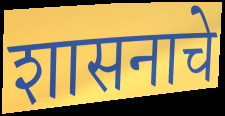
शासनाचे